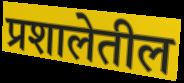
प्रशालेतील